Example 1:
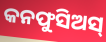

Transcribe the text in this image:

କନଫୁସିଅସ୍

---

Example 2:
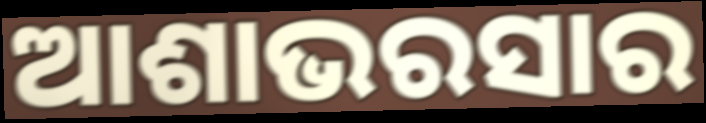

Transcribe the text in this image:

ଆଶାଭରସାର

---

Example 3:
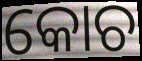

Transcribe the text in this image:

କୋଚ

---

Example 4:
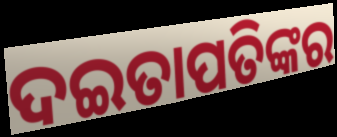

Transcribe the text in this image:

ଦଇତାପତିଙ୍କର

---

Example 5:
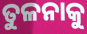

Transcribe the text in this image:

ତୁଳନାକୁ